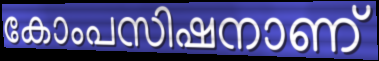
കോംപസിഷനാണ്